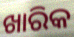
ଖାରିକ